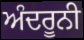
ਅੰਦਰੂਨੀ